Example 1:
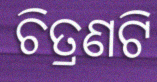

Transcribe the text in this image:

ଚିତ୍ରଣଟି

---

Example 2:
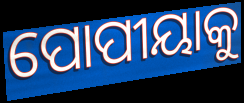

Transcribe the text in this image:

ପୋପୀୟାକୁ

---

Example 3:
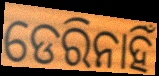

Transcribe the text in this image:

ଡେରିନାହିଁ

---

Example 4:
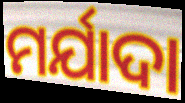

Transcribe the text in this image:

ମର୍ଯାଦା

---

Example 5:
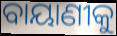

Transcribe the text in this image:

ବାୟାଣୀକୁ